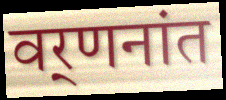
वर्णनांत